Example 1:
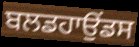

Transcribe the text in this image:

ਬਲਡਹਾਉਂਡਸ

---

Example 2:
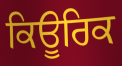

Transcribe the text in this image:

ਕਿਊਰਿਕ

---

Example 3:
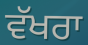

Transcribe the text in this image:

ਵੱਖਰਾ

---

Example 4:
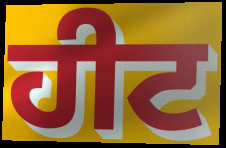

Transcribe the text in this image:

ਹੀਟ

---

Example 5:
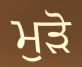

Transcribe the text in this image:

ਮੁਡ਼ੋ